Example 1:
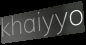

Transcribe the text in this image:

khaiyyo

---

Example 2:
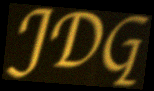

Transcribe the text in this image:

JDG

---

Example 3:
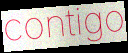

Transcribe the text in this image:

contigo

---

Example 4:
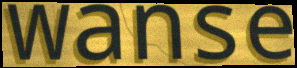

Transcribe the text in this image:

wanse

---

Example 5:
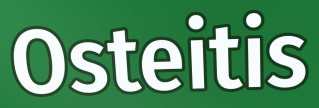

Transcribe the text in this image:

Osteitis